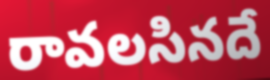
రావలసినదే